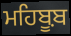
ਮਹਿਬ਼ੂਬ